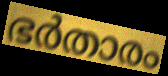
ഭർതാരം